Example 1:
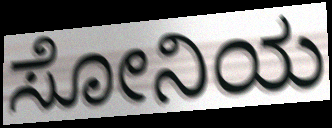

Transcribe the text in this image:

ಸೋನಿಯ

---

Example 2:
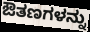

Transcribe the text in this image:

ಔತಣಗಳನ್ನು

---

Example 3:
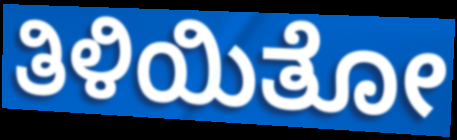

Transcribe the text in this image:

ತಿಳಿಯಿತೋ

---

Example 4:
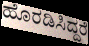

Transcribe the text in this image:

ಹೊರಡಿಸಿದ್ದರೆ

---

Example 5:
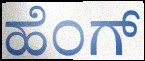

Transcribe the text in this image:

ಹೆಂಗ್